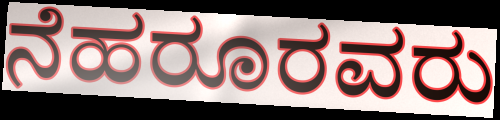
ನೆಹರೂರವರು